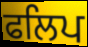
ਫਲਿਪ